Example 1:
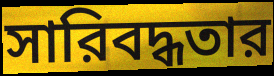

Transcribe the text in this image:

সারিবদ্ধতার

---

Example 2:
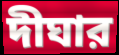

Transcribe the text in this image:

দীঘার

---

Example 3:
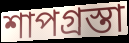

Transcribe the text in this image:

শাপগ্রস্তা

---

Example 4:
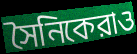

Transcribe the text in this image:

সৈনিকেরাও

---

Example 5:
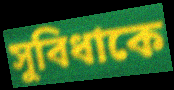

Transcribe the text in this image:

সুবিধাকে